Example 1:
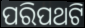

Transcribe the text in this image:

ପରିପଥଟି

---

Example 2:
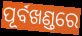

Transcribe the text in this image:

ପୂର୍ବଖଣ୍ଡରେ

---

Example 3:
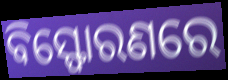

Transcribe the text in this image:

ବିସ୍ଫୋରଣରେ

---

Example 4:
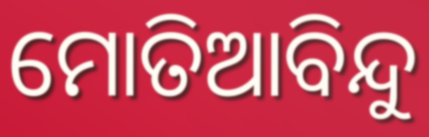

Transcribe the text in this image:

ମୋତିଆବିନ୍ଦୁ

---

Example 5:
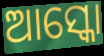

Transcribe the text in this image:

ଆସ୍କୋ